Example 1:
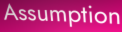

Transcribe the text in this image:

Assumption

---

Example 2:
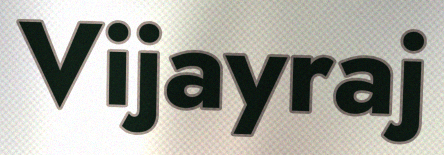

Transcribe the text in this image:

Vijayraj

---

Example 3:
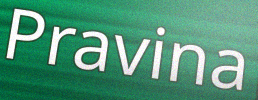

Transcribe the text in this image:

Pravina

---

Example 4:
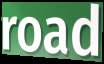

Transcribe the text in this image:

road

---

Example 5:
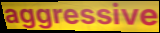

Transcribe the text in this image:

aggressive